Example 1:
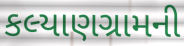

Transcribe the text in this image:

કલ્યાણગ્રામની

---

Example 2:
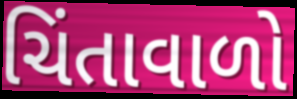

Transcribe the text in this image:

ચિંતાવાળો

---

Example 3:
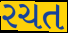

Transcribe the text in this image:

રચત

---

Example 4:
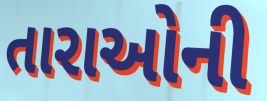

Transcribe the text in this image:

તારાઓની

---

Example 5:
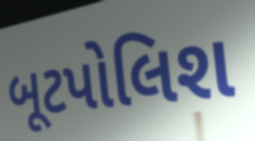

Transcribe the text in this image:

બૂટપોલિશ